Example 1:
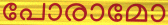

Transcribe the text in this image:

പോരാമോ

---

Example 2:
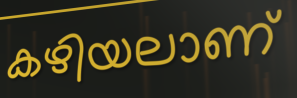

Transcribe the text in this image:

കഴിയലാണ്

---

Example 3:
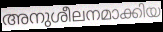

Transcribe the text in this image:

അനുശീലനമാക്കിയ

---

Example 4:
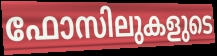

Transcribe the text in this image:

ഫോസിലുകളുടെ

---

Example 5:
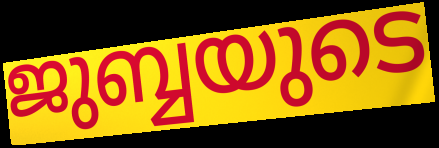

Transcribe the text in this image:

ജുബ്ബയുടെ